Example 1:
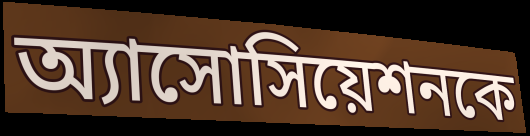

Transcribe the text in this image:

অ্যাসোসিয়েশনকে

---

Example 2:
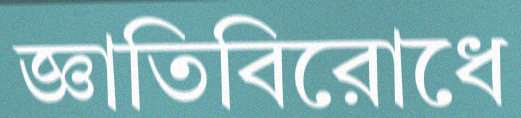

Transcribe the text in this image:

জ্ঞাতিবিরোধে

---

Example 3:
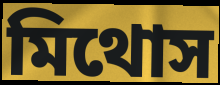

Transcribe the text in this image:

মিথোস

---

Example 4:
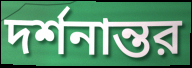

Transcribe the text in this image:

দর্শনান্তর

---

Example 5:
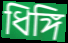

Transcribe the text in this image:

ধিঙ্গি